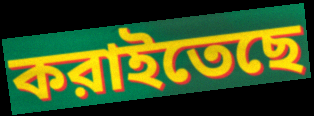
করাইতেছে